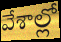
వేశాల్లో